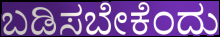
ಬಡಿಸಬೇಕೆಂದು